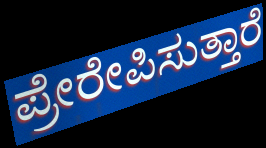
ಪ್ರೇರೇಪಿಸುತ್ತಾರೆ